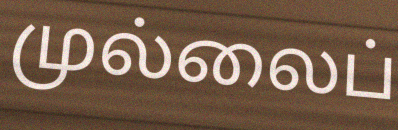
முல்லைப்